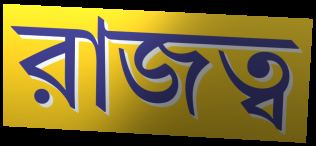
রাজত্ব